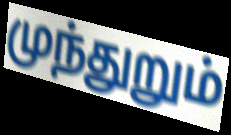
முந்துறும்